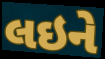
લઇને